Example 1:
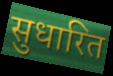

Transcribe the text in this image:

सुधारित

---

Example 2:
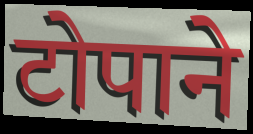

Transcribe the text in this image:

टोपाने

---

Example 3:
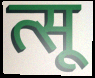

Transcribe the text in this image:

त्सू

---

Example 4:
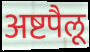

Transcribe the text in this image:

अष्टपैलू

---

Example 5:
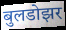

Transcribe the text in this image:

बुलडोझर